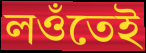
লওঁতেই